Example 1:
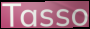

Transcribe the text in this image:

Tasso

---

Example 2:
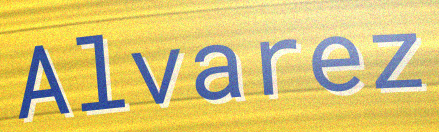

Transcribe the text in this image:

Alvarez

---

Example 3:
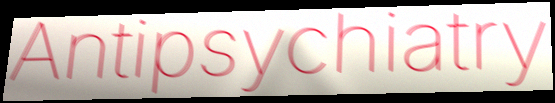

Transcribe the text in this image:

Antipsychiatry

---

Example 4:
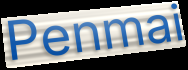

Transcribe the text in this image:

Penmai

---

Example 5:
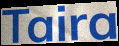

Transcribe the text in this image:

Taira